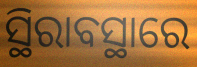
ସ୍ଥିରାବସ୍ଥାରେ